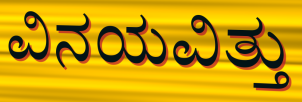
ವಿನಯವಿತ್ತು